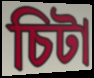
চিটা